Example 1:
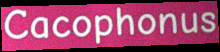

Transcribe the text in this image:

Cacophonus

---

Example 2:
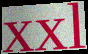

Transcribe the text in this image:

xxl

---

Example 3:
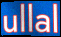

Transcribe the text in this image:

ullal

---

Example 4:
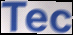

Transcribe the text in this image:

Tec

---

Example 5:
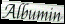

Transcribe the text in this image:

Albumin